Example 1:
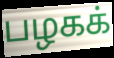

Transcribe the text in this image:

பழகக்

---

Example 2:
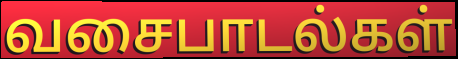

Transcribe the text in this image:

வசைபாடல்கள்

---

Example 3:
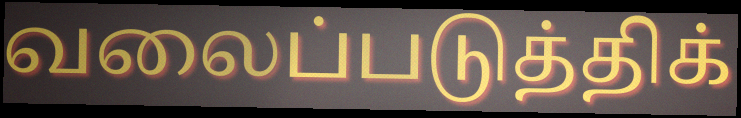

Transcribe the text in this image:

வலைப்படுத்திக்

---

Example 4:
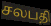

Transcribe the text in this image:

சலபதி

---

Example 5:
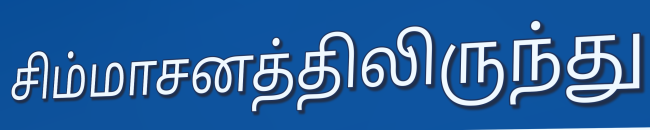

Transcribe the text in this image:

சிம்மாசனத்திலிருந்து